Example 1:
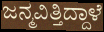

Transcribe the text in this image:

ಜನ್ಮವಿತ್ತಿದ್ದಾಳೆ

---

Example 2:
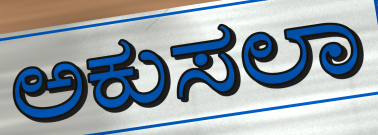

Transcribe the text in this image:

ಅಕುಸಲಾ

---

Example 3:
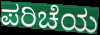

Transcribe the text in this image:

ಪರಿಚೆಯ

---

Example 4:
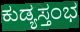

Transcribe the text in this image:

ಕುಡ್ಯಸ್ತಂಭ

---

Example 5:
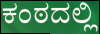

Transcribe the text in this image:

ಕಂಠದಲ್ಲಿ